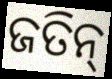
ଜତିନ୍